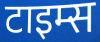
टाइम्‍स